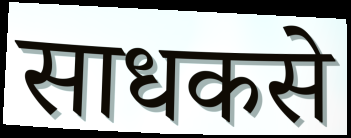
साधकसे